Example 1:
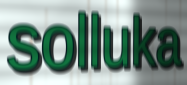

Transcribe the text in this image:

solluka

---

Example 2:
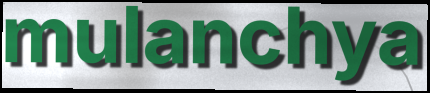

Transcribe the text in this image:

mulanchya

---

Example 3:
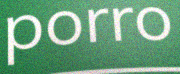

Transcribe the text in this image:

porro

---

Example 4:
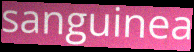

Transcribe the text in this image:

sanguinea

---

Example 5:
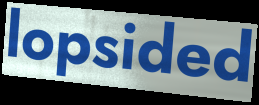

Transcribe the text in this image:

lopsided